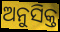
ଅନୁସିକ୍ତ